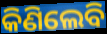
କିଣିଲେବି